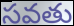
సవతు